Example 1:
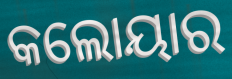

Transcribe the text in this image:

କଲୋୟାର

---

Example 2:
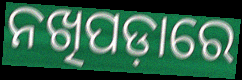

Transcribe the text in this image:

ନଖିପଡ଼ାରେ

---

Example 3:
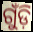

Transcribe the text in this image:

ଗୁଁଡ଼ି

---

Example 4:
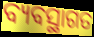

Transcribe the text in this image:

ବ୍ୟବସ୍ଥାଗତ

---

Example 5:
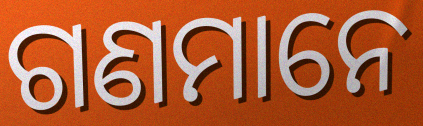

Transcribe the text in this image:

ଗଣମାନେ